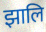
झालि